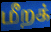
மீறக்